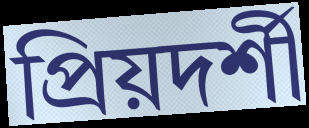
প্রিয়দর্শী